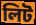
লিট